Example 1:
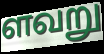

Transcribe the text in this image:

ளவறு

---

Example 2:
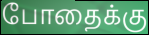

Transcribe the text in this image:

போதைக்கு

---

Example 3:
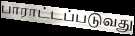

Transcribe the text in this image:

பாராட்டப்படுவது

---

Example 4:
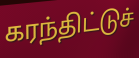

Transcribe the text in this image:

கரந்திட்டுச்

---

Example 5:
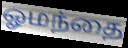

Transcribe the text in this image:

ஓமந்தை